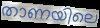
താണയിലെ